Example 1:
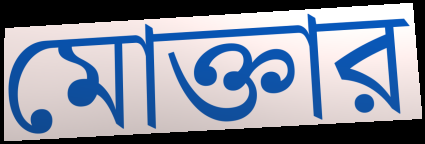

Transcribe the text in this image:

মোক্তার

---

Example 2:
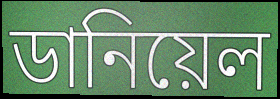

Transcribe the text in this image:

ডানিয়েল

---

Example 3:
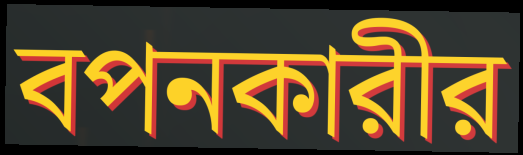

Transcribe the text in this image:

বপনকারীর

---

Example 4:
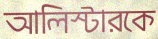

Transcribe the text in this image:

আলিস্টারকে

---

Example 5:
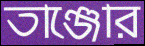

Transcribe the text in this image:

তাঞ্জোর